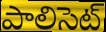
పాలిసెట్